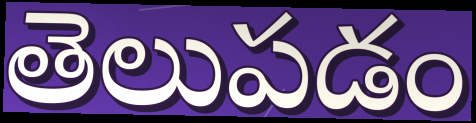
తెలుపడం